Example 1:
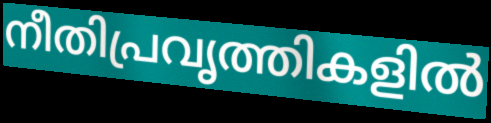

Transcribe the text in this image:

നീതിപ്രവൃത്തികളിൽ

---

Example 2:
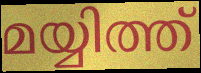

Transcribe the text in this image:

മയ്യിത്ത്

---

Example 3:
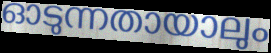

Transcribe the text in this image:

ഓടുന്നതായാലും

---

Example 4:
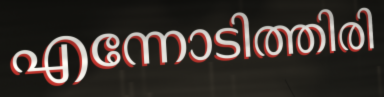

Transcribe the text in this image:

എന്നോടിത്തിരി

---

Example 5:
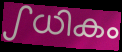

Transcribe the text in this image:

ഽധികം